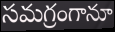
సమగ్రంగానూ